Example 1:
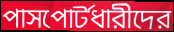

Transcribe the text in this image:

পাসপোর্টধারীদের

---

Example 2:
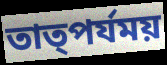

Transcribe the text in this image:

তাত্পর্যময়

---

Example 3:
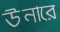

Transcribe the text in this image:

উনারে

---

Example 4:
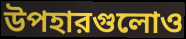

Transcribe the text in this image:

উপহারগুলোও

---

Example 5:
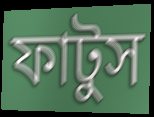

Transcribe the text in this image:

ফাটুস